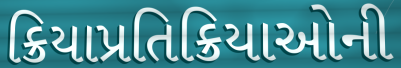
ક્રિયાપ્રતિક્રિયાઓની